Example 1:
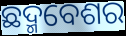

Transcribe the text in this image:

ଛଦ୍ମବେଶର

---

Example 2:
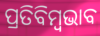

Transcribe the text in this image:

ପ୍ରତିବିମ୍ବଭାବ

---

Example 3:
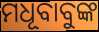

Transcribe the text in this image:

ମଧୂବାବୁଙ୍କ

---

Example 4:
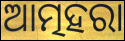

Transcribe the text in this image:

ଆତ୍ମହରା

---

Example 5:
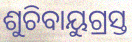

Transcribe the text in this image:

ଶୁଚିବାୟୁଗ୍ରସ୍ତ